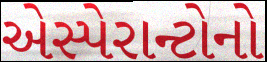
એસ્પેરાન્ટોનો